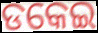
ଡକେଇ